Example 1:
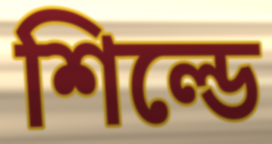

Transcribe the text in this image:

শিল্ডে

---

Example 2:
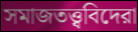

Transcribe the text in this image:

সমাজতত্ত্ববিদেরা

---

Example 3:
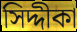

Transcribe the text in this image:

সিদ্দীকা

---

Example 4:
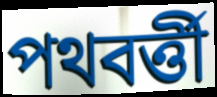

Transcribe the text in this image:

পথবর্ত্তী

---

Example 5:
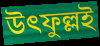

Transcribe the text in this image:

উৎফুল্লই